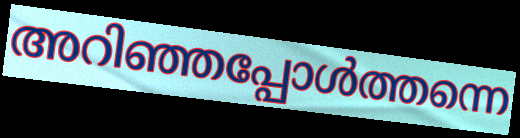
അറിഞ്ഞപ്പോൾത്തന്നെ